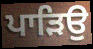
ਪਾੜਿਉ